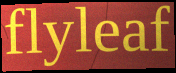
flyleaf